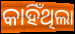
କାହିଁଥିଲା